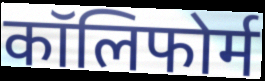
कॉलिफोर्म